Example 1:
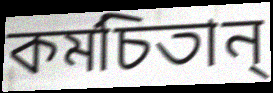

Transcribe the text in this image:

কর্মচিতান্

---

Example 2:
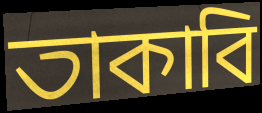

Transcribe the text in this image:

তাকাবি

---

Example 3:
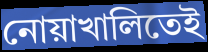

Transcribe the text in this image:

নোয়াখালিতেই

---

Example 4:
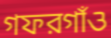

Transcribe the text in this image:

গফরগাঁও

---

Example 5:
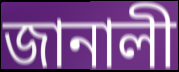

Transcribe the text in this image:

জানালী